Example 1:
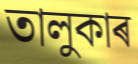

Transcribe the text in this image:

তালুকাৰ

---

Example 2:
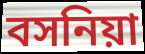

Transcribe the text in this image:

বসনিয়া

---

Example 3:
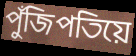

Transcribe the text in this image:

পুঁজিপতিয়ে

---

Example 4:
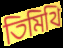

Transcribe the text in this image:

তিমিথি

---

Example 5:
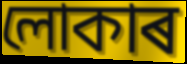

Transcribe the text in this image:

লোকাৰ